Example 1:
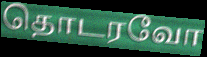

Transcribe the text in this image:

தொடரவோ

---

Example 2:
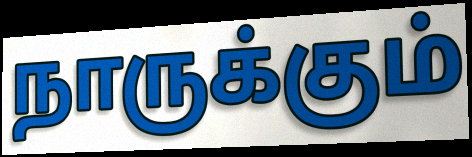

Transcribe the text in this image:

நாருக்கும்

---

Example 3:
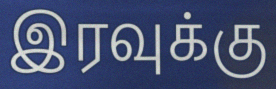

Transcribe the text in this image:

இரவுக்கு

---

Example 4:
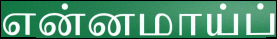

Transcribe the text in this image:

என்னமாய்ப்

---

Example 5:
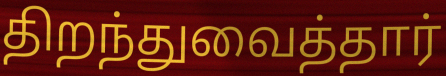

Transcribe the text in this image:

திறந்துவைத்தார்